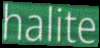
halite